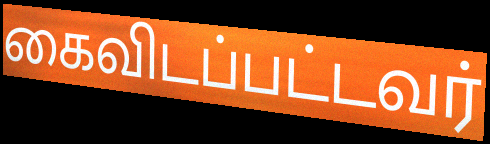
கைவிடப்பட்டவர்